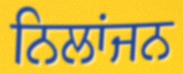
ਨਿਲਾਂਜਨ